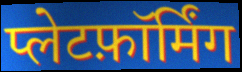
प्लेटफ़ॉर्मिंग